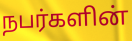
நபர்களின்